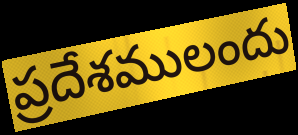
ప్రదేశములందు